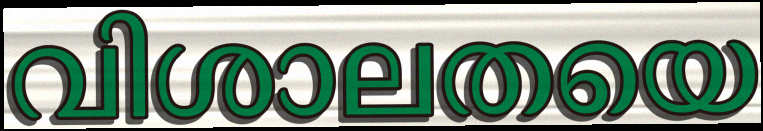
വിശാലതയെ